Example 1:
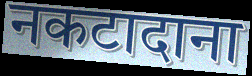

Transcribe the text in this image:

नकटादाना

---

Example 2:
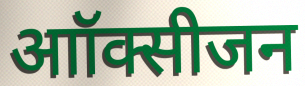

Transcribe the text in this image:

आॉक्सीजन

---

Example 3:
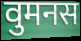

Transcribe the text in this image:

वुमनस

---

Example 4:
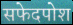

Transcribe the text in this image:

सफेदपोश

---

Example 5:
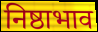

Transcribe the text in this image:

निष्ठाभाव